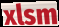
xlsm